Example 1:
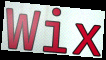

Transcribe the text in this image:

Wix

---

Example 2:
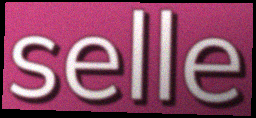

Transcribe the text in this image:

selle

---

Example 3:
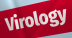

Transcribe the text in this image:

Virology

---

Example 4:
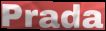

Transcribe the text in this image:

Prada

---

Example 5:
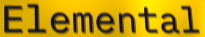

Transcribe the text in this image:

Elemental